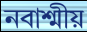
নবাশ্মীয়